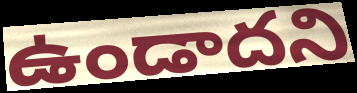
ఉండాదని